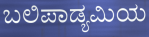
ಬಲಿಪಾಡ್ಯಮಿಯ